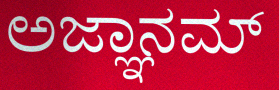
ಅಜ್ಞಾನಮ್